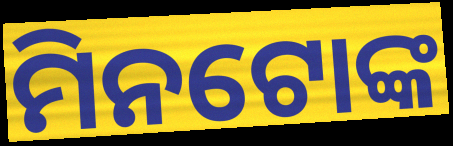
ମିନଟୋଙ୍କ